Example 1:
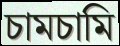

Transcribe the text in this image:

চামচামি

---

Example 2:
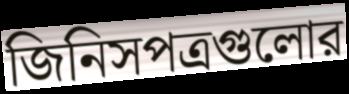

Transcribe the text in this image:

জিনিসপত্রগুলোর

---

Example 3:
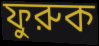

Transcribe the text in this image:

ফুরুক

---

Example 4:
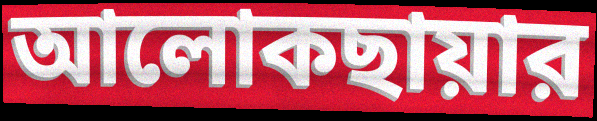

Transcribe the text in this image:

আলোকছায়ার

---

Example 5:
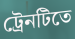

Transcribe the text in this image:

ট্রেনটিতে